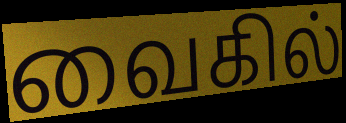
வைகில்